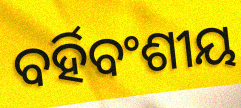
ବର୍ହିବଂଶୀୟ